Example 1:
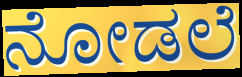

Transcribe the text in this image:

ನೋಡಲೆ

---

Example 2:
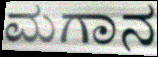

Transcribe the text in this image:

ಮಗಾನ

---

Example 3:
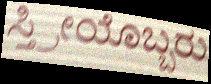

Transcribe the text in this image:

ಸ್ತ್ರೀಯೊಬ್ಬರು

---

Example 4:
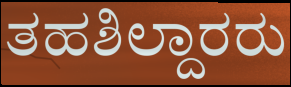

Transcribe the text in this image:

ತಹಶಿಲ್ದಾರರು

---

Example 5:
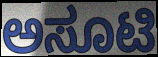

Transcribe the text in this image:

ಅಸೂಟಿ